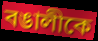
বঙালীকে